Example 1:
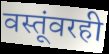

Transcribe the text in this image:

वस्तूंवरही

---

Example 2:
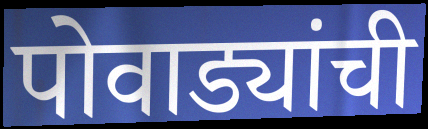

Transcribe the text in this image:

पोवाड्यांची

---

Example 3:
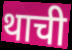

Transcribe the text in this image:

थाची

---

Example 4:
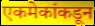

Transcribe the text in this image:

एकमेकांकडून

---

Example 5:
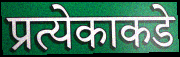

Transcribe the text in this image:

प्रत्येकाकडे